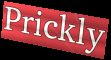
Prickly